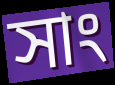
সাং